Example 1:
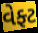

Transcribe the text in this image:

વેફ્ટ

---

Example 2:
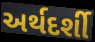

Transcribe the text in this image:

અર્થદર્શી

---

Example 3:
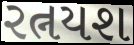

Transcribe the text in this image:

રત્નયશ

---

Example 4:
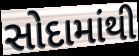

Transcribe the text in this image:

સોદામાંથી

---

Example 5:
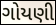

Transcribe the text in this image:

ગોયણી